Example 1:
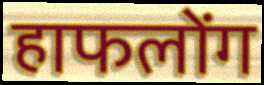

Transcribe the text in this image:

हाफलोंग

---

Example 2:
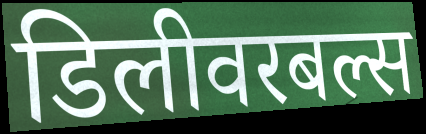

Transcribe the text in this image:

डिलीवरबल्स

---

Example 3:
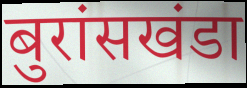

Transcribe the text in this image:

बुरांसखंडा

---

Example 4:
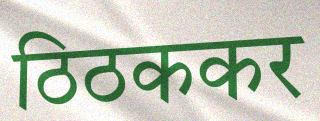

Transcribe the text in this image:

ठिठककर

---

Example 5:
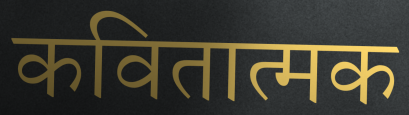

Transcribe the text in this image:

कवितात्मक